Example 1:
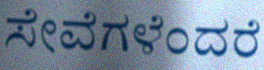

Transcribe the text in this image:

ಸೇವೆಗಳೆಂದರೆ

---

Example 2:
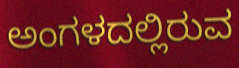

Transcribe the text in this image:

ಅಂಗಳದಲ್ಲಿರುವ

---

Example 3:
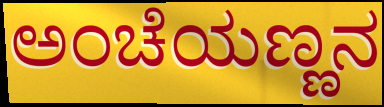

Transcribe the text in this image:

ಅಂಚೆಯಣ್ಣನ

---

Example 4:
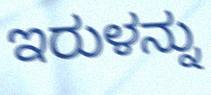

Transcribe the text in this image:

ಇರುಳನ್ನು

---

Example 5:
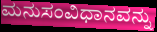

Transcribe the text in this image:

ಮನುಸಂವಿಧಾನವನ್ನು